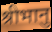
श्रीभानु